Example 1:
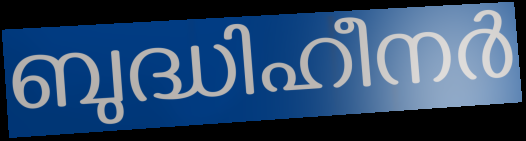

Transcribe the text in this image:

ബുദ്ധിഹീനർ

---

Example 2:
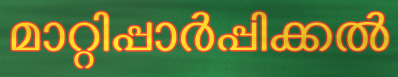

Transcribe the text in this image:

മാറ്റിപ്പാർപ്പിക്കൽ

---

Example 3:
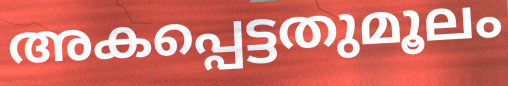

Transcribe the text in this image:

അകപ്പെട്ടതുമൂലം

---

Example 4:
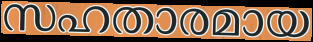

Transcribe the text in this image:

സഹതാരമായ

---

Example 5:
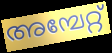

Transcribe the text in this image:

അമ്പേറ്റ്